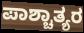
ಪಾಶ್ಚಾತ್ಯರ